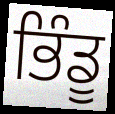
ਭਿੰਡੂ